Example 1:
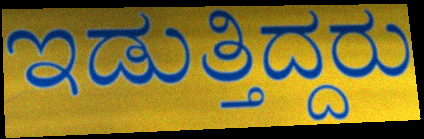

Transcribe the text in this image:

ಇಡುತ್ತಿದ್ದರು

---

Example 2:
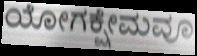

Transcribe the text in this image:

ಯೋಗಕ್ಷೇಮವೂ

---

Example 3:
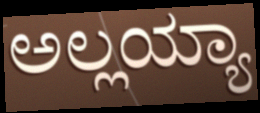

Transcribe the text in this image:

ಅಲ್ಲಯ್ಯಾ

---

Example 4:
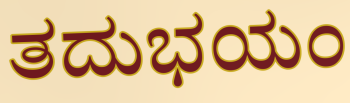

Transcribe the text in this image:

ತದುಭಯಂ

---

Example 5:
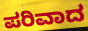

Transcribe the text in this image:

ಪರಿವಾದ